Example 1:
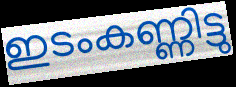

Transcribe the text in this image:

ഇടംകണ്ണിട്ടു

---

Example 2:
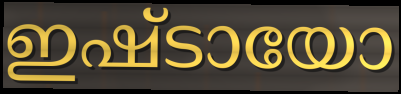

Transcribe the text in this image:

ഇഷ്ടായോ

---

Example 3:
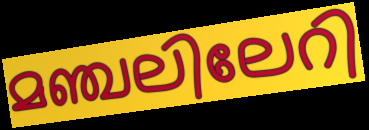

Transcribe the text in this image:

മഞ്ചലിലേറി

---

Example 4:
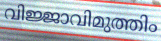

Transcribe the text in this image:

വിജ്ജാവിമുത്തിം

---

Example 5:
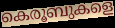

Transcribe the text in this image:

കെരൂബുകളെ